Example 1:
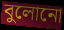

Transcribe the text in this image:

বুলোনো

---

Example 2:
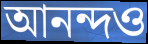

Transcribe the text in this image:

আনন্দও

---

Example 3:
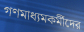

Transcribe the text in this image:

গণমাধ্যমকর্মীদের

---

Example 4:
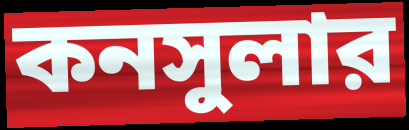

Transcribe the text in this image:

কনসুলার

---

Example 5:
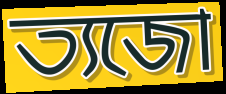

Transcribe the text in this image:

ত্যজো